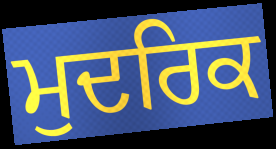
ਮੁਦਰਿਕ